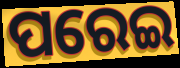
ପରେଇ